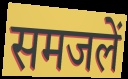
समजलें